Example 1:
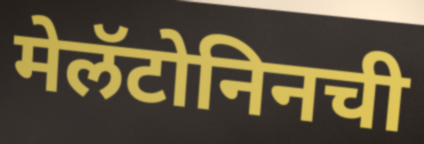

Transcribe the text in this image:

मेलॅटोनिनची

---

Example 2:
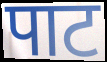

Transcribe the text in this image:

पाट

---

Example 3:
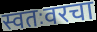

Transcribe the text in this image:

स्वतःवरचा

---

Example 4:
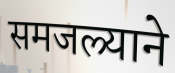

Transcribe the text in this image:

समजल्याने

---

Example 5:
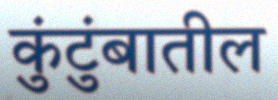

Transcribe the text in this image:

कुंटुंबातील